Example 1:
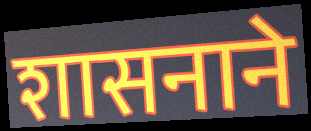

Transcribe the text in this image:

शासनाने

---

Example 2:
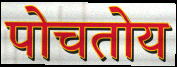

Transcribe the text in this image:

पोचतोय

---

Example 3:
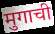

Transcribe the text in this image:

मुगाची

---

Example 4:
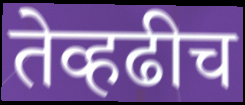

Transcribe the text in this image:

तेव्हढीच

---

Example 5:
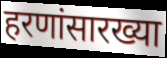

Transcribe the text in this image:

हरणांसारख्या